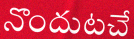
నొందుటచే